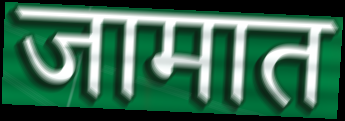
जामात